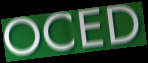
OCED